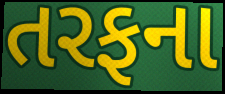
તરફના